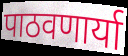
पाठवणार्या